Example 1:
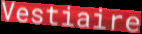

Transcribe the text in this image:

Vestiaire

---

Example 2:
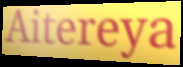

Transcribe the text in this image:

Aitereya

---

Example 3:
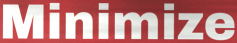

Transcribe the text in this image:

Minimize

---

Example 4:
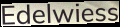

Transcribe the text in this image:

Edelwiess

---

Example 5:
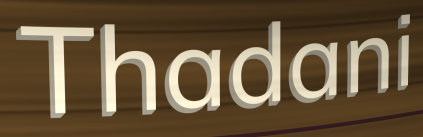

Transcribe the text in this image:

Thadani